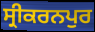
ਸ੍ਰੀਕਰਨਪੁਰ